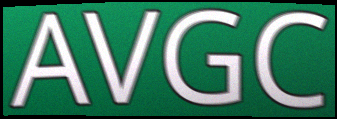
AVGC